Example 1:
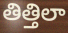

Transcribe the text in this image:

తిత్తిలా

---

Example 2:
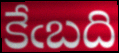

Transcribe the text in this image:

కేఁబది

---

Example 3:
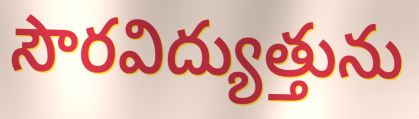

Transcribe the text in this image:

సౌరవిద్యుత్తును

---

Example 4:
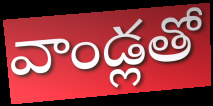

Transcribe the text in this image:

వాండ్లతో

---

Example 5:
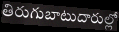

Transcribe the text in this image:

తిరుగుబాటుదారుల్లో